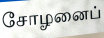
சோழனைப்